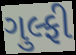
ગુલ્ફી